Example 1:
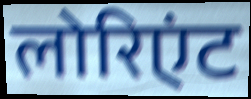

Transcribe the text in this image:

लोरिएंट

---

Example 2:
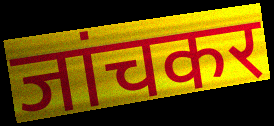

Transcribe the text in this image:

जांचकर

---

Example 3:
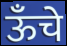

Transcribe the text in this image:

ऊँचे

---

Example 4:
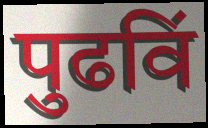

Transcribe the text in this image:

पुढविं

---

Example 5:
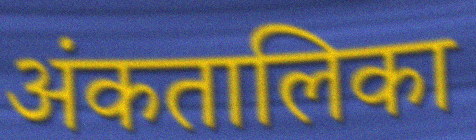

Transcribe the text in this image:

अंकतालिका